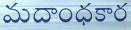
మదాంధకార